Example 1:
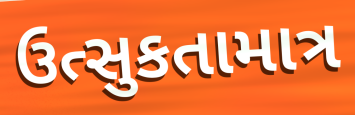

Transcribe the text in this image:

ઉત્સુકતામાત્ર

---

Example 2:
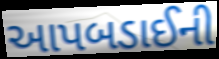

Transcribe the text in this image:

આપબડાઈની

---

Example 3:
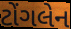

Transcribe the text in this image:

ટોંગલેન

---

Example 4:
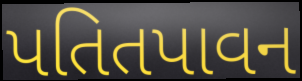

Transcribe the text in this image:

પતિતપાવન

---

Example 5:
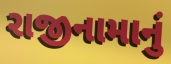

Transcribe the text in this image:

રાજીનામાનું